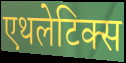
एथलेटिक्स